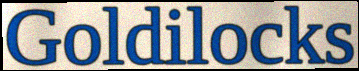
Goldilocks